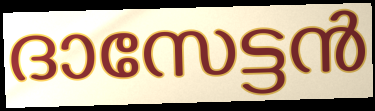
ദാസേട്ടൻ